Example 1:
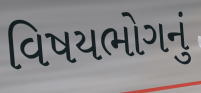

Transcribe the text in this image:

વિષયભોગનું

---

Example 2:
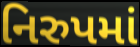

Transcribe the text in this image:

નિરુપમાં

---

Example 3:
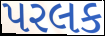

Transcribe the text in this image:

પરલક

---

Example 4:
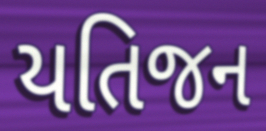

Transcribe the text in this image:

યતિજન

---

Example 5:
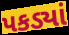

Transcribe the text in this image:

પકડ્યાં